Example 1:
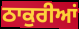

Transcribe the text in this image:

ਠਾਕੁਰੀਆਂ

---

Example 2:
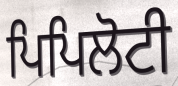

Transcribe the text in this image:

ਪਿਪਿਲੋਟੀ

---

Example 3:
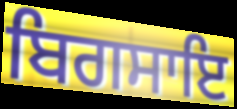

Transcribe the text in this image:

ਬਿਗਸਾਇ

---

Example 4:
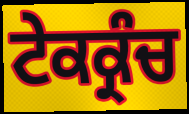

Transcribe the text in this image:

ਟੇਕਕ੍ਰੰਚ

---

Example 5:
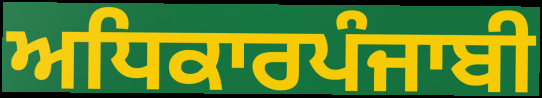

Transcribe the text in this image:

ਅਧਿਕਾਰਪੰਜਾਬੀ